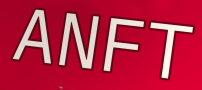
ANFT